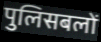
पुलिसबलों